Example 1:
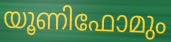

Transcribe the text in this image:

യൂണിഫോമും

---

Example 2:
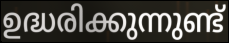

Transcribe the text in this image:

ഉദ്ധരിക്കുന്നുണ്ട്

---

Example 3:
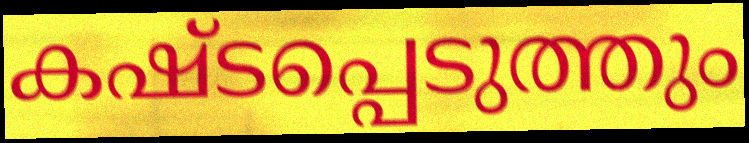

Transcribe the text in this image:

കഷ്ടപ്പെടുത്തും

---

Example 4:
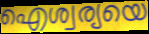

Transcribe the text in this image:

ഐശ്വര്യയെ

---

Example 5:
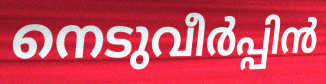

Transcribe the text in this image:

നെടുവീർപ്പിൻ